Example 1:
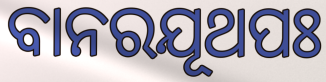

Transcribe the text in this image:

ବାନରଯୂଥପଃ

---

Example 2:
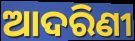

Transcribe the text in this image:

ଆଦରିଣୀ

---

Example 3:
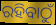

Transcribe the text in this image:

ରହିବାଠୁଁ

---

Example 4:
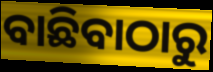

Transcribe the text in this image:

ବାଛିବାଠାରୁ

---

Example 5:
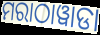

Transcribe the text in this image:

ମରାଠାୱାଡା